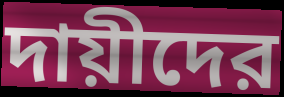
দায়ীদের